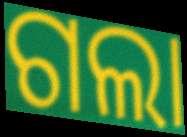
ଗଲା